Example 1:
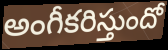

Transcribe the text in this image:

అంగీకరిస్తుందో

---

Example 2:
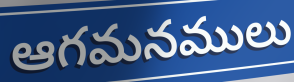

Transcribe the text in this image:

ఆగమనములు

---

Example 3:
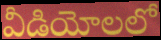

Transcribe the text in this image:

వీడియోలలో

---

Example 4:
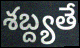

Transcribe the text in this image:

శబ్ద్యతే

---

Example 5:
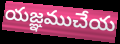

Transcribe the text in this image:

యజ్ఞముచేయ